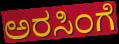
ಅರಸಿಂಗೆ